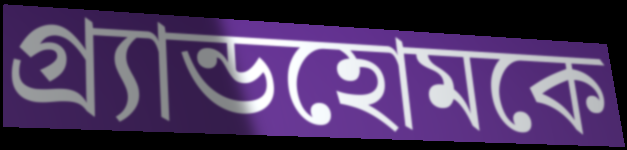
গ্র্যান্ডহোমকে